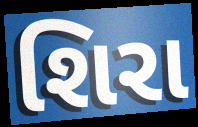
શિરા